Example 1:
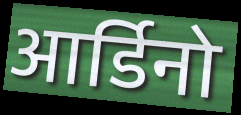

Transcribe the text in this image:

आर्डिनो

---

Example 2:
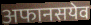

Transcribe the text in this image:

अफानसयेव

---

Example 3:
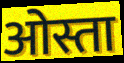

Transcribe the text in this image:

ओस्ता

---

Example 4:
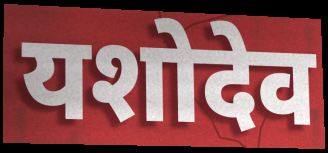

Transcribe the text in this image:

यशोदेव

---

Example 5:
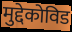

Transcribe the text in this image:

मुद्देकोविड